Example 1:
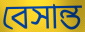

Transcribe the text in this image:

বেসান্ত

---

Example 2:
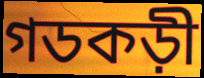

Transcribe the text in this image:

গডকড়ী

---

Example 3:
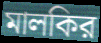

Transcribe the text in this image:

মালকির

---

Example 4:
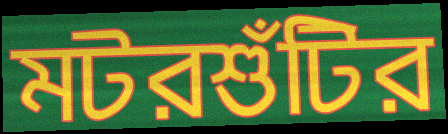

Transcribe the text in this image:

মটরশুঁটির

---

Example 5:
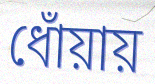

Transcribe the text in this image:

ধোঁয়ায়